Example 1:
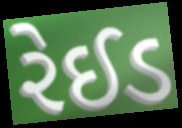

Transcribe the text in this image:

રેઈડ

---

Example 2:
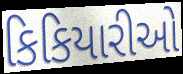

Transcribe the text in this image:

કિકિયારીઓ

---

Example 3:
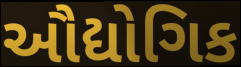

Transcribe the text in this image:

ઔદ્યોગિક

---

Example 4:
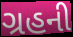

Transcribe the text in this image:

ગ્રહની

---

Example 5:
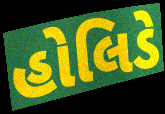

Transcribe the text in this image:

હોલિડે